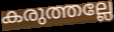
കരുത്തല്ലേ